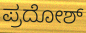
ಪ್ರದೋಶ್